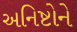
અનિષ્ટોને